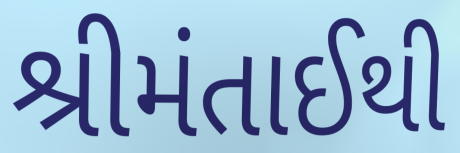
શ્રીમંતાઈથી